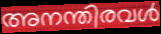
അനന്തിരവൾ